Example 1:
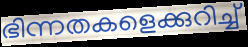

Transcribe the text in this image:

ഭിന്നതകളെക്കുറിച്ച്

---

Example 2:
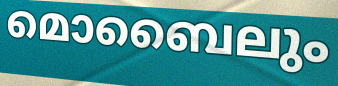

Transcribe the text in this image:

മൊബൈലും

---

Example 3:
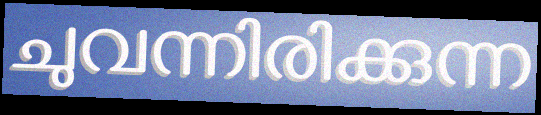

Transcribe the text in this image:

ചുവന്നിരിക്കുന്ന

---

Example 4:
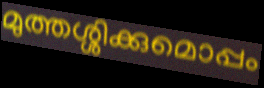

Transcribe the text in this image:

മുത്തശ്ശിക്കുമൊപ്പം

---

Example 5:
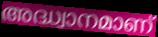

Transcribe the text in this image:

അദ്ധ്വാനമാണ്